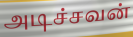
அடிச்சவன்